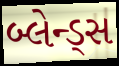
બ્લેન્ડ્સ